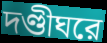
দণ্ডীঘরে